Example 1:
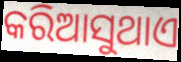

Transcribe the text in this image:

କରିଆସୁଥାଏ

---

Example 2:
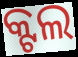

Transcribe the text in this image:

କ୍ଟଲ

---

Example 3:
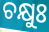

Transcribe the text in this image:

ଚକ୍ଷୁଃ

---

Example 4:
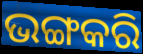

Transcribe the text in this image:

ଭଙ୍ଗକରି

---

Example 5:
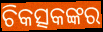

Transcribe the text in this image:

ଚିକତ୍ସକଙ୍କର